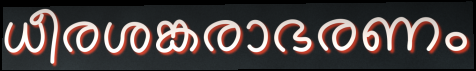
ധീരശങ്കരാഭരണം